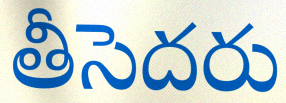
తీసెదరు